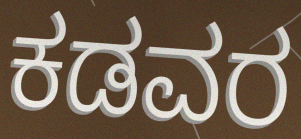
ಕಡವರ